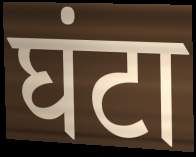
घंटा